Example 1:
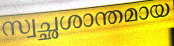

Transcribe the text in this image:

സ്വച്ഛശാന്തമായ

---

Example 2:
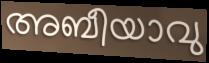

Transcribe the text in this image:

അബീയാവു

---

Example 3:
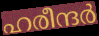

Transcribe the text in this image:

ഹരീന്ദർ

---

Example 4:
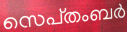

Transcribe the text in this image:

സെപ്‌തംബർ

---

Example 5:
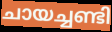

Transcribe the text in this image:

ചായച്ചണ്ടി